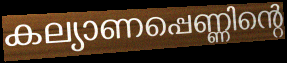
കല്യാണപ്പെണ്ണിന്റെ